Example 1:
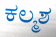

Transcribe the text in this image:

ಕಲ್ಮಶ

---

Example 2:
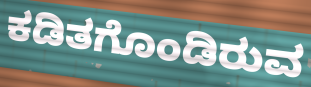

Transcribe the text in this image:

ಕಡಿತಗೊಂಡಿರುವ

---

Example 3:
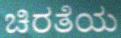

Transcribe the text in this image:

ಚಿರತೆಯ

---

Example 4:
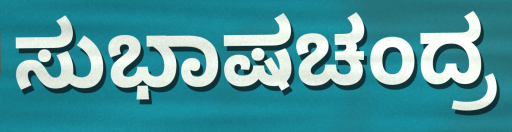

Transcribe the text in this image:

ಸುಭಾಷಚಂದ್ರ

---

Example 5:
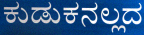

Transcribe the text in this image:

ಕುಡುಕನಲ್ಲದ